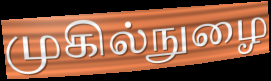
முகில்நுழை